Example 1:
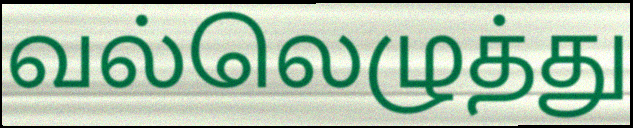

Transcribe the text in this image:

வல்லெழுத்து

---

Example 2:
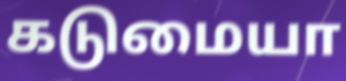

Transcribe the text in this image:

கடுமையா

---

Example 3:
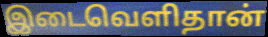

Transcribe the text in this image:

இடைவெளிதான்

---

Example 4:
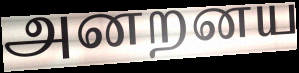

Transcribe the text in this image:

அனறனய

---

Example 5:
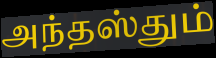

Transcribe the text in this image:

அந்தஸ்தும்